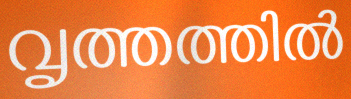
വൃത്തത്തിൽ